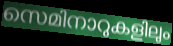
സെമിനാറുകളിലും